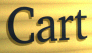
Cart